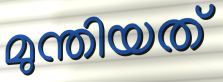
മുന്തിയത്